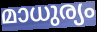
മാധുര്യം